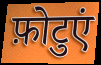
फ़ोटुएं